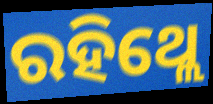
ରହିଥ୍ଲେ